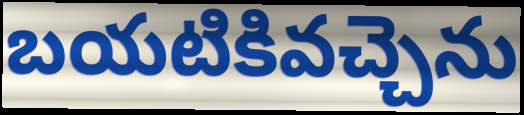
బయటికివచ్చెను